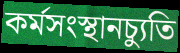
কর্মসংস্থানচ্যুতি